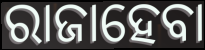
ରାଜାହେବା